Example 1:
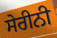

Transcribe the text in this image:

ਸੇਰੀਨੀ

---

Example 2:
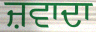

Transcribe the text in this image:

ਜ਼ਵਾਦਾ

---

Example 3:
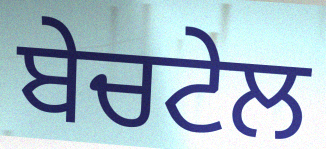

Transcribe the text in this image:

ਬੇਚਟੇਲ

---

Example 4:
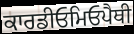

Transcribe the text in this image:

ਕਾਰਡੀਓਮਿਓਪੈਥੀ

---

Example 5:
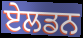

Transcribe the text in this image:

ਏਲਡਨ